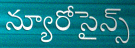
న్యూరోసైన్స్